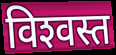
विश्‍वस्त